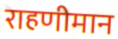
राहणीमान